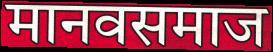
मानवसमाज